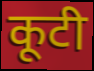
कूटी